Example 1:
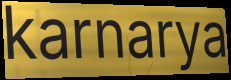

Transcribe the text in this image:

karnarya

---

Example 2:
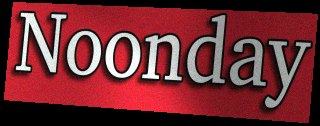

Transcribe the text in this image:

Noonday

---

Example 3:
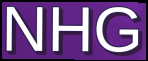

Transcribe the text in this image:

NHG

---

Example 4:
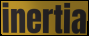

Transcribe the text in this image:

inertia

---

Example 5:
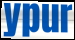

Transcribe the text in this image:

ypur